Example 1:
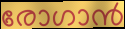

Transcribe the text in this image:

രോഗാൻ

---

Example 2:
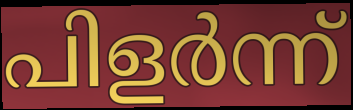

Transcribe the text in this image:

പിളർന്ന്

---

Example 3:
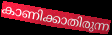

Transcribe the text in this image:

കാണിക്കാതിരുന്ന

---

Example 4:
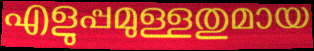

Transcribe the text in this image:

എളുപ്പമുള്ളതുമായ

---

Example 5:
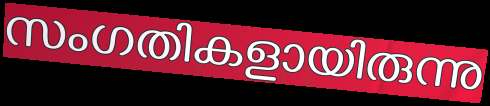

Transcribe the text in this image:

സംഗതികളായിരുന്നു